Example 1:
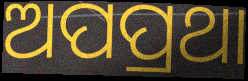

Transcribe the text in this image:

ଅପପ୍ରଥା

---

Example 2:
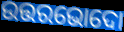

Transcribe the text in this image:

ଉତ୍ତରଭୋଦୋ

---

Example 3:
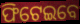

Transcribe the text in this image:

ଫିଟେଇବେ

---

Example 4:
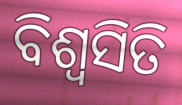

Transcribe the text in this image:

ବିଶ୍ଵସିତି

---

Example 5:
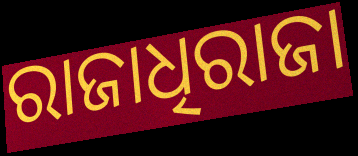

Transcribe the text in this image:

ରାଜାଧିରାଜା